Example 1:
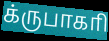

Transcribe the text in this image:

க்ருபாகரி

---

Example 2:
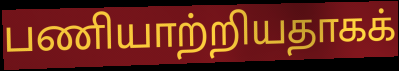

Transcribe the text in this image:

பணியாற்றியதாகக்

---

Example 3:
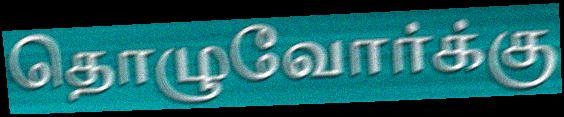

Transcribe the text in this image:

தொழுவோர்க்கு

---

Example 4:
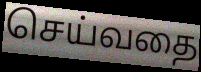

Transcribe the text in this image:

செய்வதை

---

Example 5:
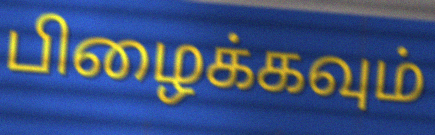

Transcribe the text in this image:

பிழைக்கவும்